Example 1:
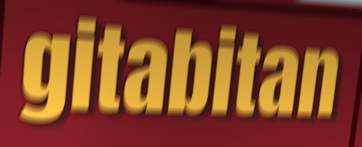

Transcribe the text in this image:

gitabitan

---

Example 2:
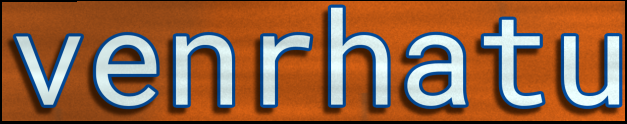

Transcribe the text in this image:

venrhatu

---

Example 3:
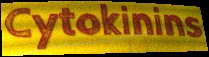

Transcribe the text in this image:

Cytokinins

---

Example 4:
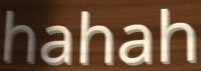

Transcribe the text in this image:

hahah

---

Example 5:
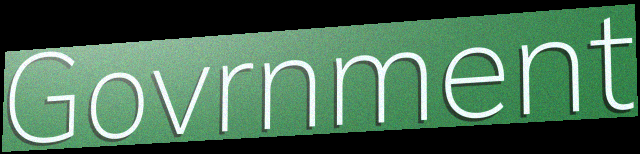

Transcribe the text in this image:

Govrnment